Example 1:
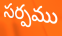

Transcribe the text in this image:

సర్పము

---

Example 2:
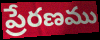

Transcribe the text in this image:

ప్రేరణము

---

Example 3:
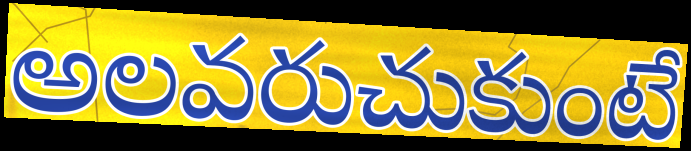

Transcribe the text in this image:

అలవరుచుకుంటే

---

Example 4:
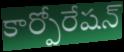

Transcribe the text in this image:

కార్పోరేషన్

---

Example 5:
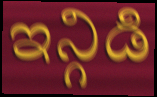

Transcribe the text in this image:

ఇన్గిడి